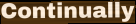
Continually